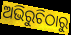
ଅଭିରୁଚିଠାରୁ